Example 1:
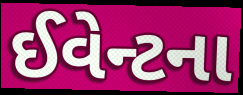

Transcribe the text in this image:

ઈવેન્ટના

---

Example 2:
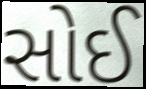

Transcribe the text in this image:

સોઈ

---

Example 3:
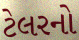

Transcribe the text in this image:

ટેલરનો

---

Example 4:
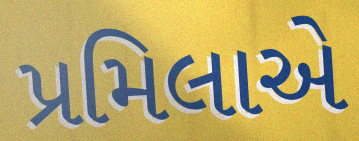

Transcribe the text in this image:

પ્રમિલાએ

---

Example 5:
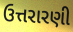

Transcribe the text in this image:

ઉત્તરારણી